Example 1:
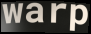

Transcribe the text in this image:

warp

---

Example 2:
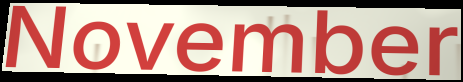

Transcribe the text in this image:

November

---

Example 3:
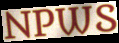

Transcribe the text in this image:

NPWS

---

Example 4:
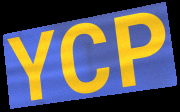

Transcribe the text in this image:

YCP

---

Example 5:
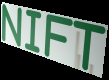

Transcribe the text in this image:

NIFT